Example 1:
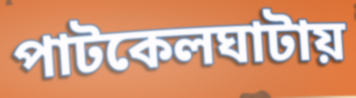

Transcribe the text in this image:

পাটকেলঘাটায়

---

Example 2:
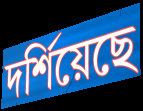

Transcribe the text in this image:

দর্শিয়েছে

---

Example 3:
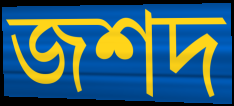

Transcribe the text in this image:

জশদ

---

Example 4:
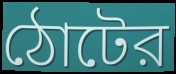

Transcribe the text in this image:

ঠোটের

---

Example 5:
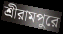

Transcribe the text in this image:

শ্রীরামপুরে